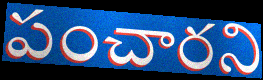
పంచారని